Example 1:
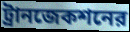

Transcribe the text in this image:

ট্রানজেকশনের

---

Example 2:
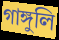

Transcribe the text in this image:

গাঙ্গুলি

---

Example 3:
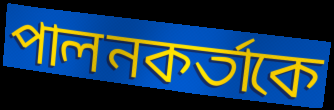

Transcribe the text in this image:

পালনকর্তাকে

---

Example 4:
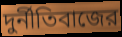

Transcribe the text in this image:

দুর্নীতিবাজের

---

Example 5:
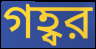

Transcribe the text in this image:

গহ্বর